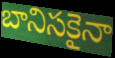
బానిసకైనా